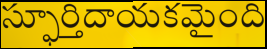
స్ఫూర్తిదాయకమైంది